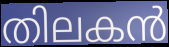
തിലകൻ